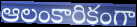
ఆలంకారికంగా